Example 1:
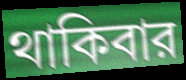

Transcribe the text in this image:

থাকিবার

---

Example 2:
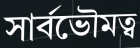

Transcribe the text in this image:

সার্বভৌমত্ব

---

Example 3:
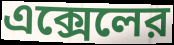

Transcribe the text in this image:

এক্সেলের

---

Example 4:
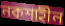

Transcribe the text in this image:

নকশাহীন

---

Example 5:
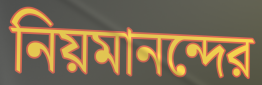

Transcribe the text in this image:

নিয়মানন্দের